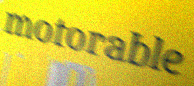
motorable